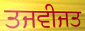
ਤਜਵੀਜਤ